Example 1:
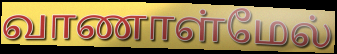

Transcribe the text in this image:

வாணாள்மேல்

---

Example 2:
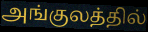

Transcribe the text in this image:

அங்குலத்தில்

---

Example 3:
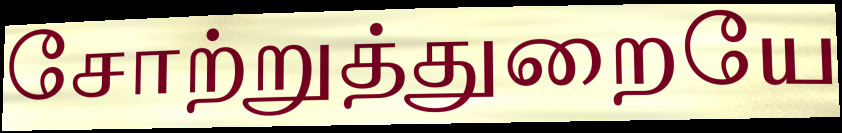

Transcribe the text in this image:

சோற்றுத்துறையே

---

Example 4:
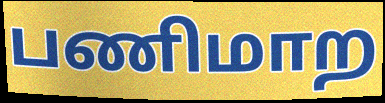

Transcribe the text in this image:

பணிமாற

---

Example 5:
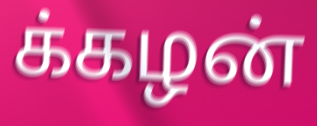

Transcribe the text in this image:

க்கழன்